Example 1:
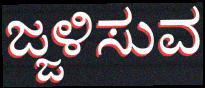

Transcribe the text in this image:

ಜ್ಜಳಿಸುವ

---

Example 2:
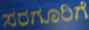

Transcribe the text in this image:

ಸರಗೂರಿಗೆ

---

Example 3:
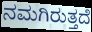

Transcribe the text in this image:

ನಮಗಿರುತ್ತದೆ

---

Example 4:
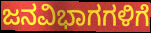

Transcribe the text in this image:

ಜನವಿಭಾಗಗಳಿಗೆ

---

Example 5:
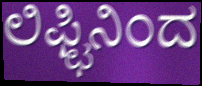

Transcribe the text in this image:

ಲಿಫ್ಟಿನಿಂದ